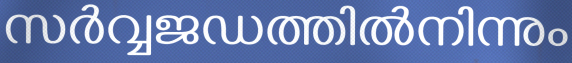
സർവ്വജഡത്തിൽനിന്നും